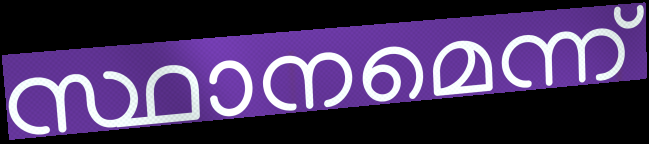
സ്ഥാനമെന്ന്